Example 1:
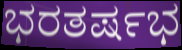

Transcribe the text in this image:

ಭರತರ್ಷಭ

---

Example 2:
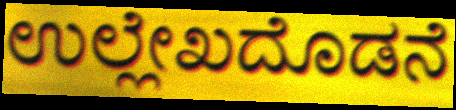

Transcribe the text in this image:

ಉಲ್ಲೇಖದೊಡನೆ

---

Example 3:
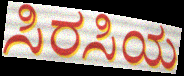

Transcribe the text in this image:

ಸಿರಸಿಯ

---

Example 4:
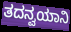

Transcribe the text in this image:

ತದನ್ವಯಾನಿ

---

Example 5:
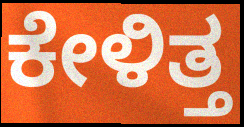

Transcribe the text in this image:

ಕೇಳಿತ್ತ